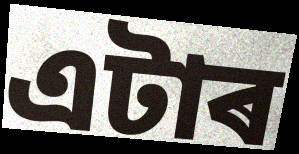
এটাৰ